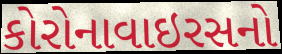
કોરોનાવાઇરસનો